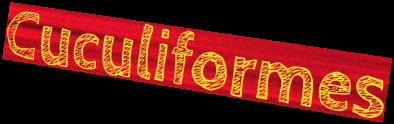
Cuculiformes